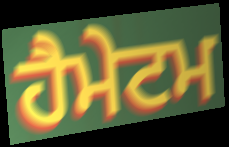
ਹੈਮੇਟਮ